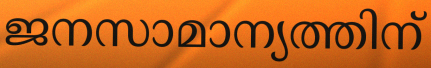
ജനസാമാന്യത്തിന്